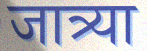
जात्र्या